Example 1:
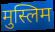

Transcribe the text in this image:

मुस्लिम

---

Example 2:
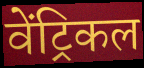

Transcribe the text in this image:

वेंट्रिकल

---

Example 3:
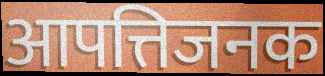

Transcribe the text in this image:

आपत्तिजनक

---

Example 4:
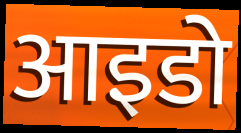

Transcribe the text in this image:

आइडो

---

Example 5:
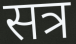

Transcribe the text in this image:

सत्र